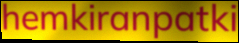
hemkiranpatki